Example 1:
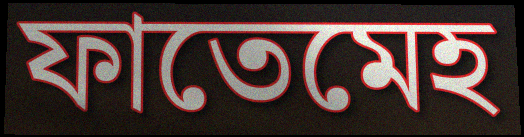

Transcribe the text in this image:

ফাতেমেহ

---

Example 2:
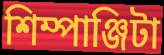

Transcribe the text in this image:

শিম্পাঞ্জিটা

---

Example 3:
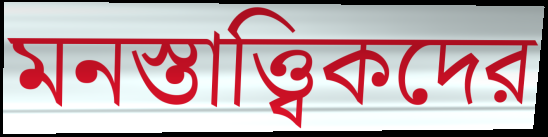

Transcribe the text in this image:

মনস্তাত্ত্বিকদের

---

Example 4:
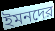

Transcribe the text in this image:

ইমনদের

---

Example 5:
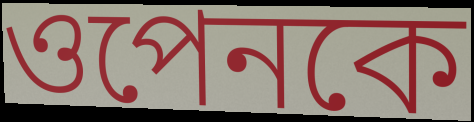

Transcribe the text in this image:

ওপেনকে